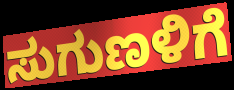
ಸುಗುಣಳಿಗೆ